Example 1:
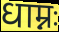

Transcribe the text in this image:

धाम्नः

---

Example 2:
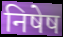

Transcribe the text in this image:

निषेष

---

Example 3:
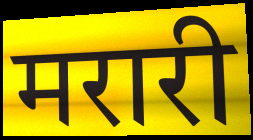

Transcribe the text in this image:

मरारी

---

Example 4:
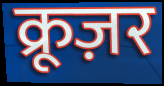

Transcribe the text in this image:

क्रूज़र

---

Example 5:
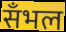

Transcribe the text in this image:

सँभल